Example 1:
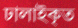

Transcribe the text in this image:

ঢালাইকৃত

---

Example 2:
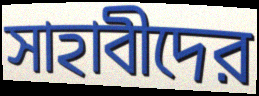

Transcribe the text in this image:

সাহাবীদের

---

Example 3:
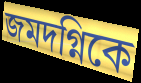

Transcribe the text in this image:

জমদগ্নিকে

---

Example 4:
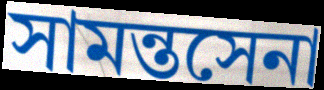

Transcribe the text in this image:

সামন্তসেনা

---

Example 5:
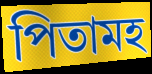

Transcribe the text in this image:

পিতামহ